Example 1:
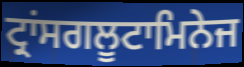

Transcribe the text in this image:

ਟ੍ਰਾਂਸਗਲੂਟਾਮਿਨੇਜ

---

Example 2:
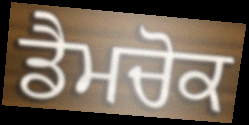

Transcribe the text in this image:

ਡੈਮਚੋਕ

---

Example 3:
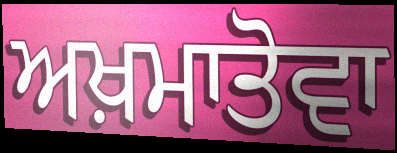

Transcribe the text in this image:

ਅਖ਼ਮਾਤੋਵਾ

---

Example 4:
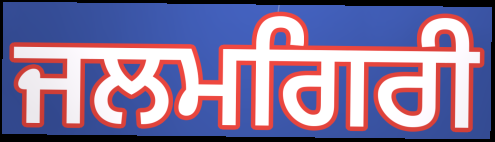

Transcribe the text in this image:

ਜਲਮਗਿਰੀ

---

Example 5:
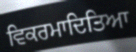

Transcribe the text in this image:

ਵਿਕਰਮਾਦਿਤਿਆ